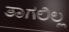
ತಾಗಲಿಲ್ಲ